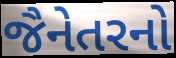
જૈનેતરનો